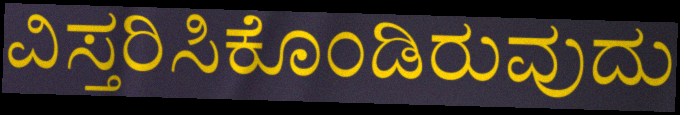
ವಿಸ್ತರಿಸಿಕೊಂಡಿರುವುದು